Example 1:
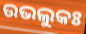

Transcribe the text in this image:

ଉଭଲୁକଃ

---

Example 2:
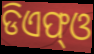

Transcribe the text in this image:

ଡିଏଫ୍ଓ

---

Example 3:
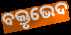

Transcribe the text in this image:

ବକ୍ତୃଭେଦ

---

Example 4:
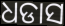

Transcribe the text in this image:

ଧଡାସ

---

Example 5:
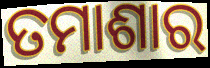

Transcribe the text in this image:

ତମାଶାର